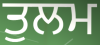
ਤੁਲਮ